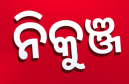
ନିକୁଞ୍ଜ